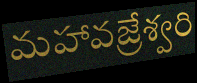
మహావజ్రేశ్వరి